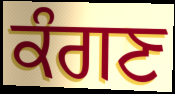
ਕੰਗਣ